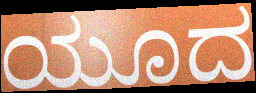
ಯೂದ